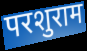
परशुराम